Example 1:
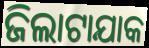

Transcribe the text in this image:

ଜିଲାଟାଯାକ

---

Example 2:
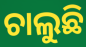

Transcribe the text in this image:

ଚାଲୁଛି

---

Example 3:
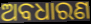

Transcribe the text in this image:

ଅବଧାରଣ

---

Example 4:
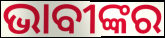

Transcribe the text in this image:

ଭାବୀଙ୍କର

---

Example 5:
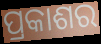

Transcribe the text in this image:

ପ୍ରକାଶର